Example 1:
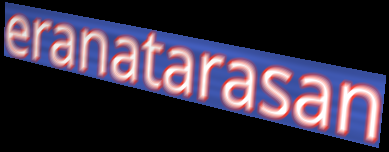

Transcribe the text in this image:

eranatarasan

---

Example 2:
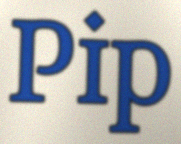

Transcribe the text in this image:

Pip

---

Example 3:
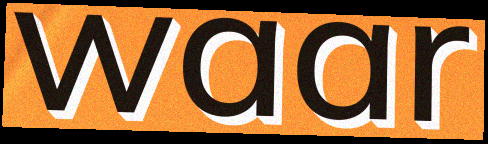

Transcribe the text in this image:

waar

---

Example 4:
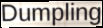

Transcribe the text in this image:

Dumpling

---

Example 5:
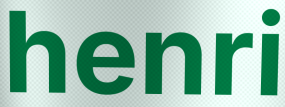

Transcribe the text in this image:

henri